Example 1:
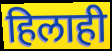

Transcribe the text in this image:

हिलाही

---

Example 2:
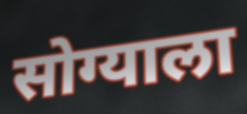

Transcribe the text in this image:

सोग्याला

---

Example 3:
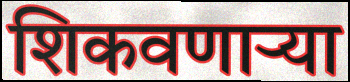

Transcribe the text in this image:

शिकवणाऱ्या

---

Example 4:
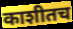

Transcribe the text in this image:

काशीतच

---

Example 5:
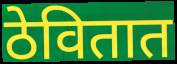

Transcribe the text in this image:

ठेवितात